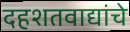
दहशतवाद्यांचे